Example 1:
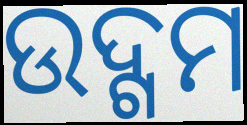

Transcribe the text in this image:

ଉଦ୍ଗମ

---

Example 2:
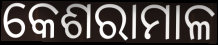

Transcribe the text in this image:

କେଶରାମାଳ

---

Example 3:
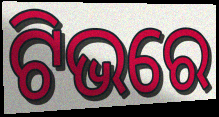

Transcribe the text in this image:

ଟିଭରେ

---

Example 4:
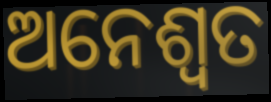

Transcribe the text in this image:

ଅନେଶ୍ଵତ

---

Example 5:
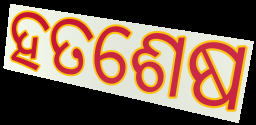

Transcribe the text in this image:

ହତଶେଷ